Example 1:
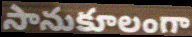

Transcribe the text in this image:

సానుకూలంగా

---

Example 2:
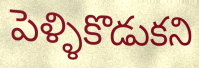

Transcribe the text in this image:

పెళ్ళికొడుకని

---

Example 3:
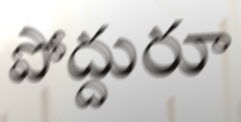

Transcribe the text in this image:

పోద్దురూ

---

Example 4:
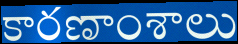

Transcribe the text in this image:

కారణాంశాలు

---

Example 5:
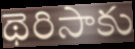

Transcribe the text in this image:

థెరిసాకు